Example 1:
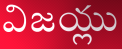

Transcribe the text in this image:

విజయ్లు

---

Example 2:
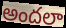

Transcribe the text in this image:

అందలా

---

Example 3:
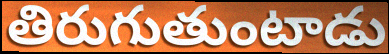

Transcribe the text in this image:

తిరుగుతుంటాడు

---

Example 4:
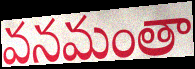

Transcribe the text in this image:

వనమంతా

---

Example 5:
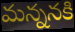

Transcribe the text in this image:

మన్ననకి